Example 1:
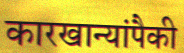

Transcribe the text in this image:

कारखान्यांपैकी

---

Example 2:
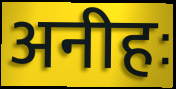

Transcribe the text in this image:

अनीहः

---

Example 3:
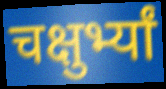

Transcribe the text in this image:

चक्षुर्भ्यां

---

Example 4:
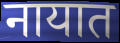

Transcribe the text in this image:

नायात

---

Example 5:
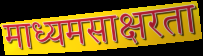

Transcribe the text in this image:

माध्यमसाक्षरता